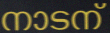
നാടന്